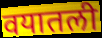
वयातली